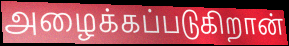
அழைக்கப்படுகிறான்